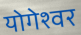
योगेश्वर